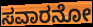
ಸವಾರನೋ